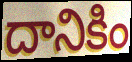
దానికిం